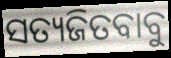
ସତ୍ୟଜିତବାବୁ